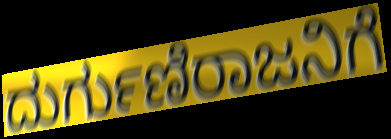
ದುರ್ಗುಣಿರಾಜನಿಗೆ